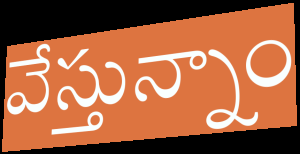
వేస్తున్నాం